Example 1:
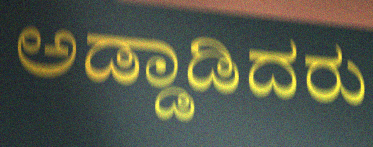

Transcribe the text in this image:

ಅಡ್ಡಾಡಿದರು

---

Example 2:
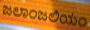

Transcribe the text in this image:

ಜಲಾಂಜಲಿಯಂ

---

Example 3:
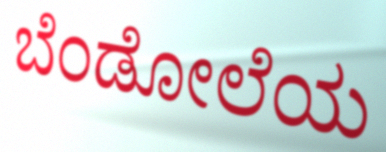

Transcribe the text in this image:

ಬೆಂಡೋಲೆಯ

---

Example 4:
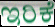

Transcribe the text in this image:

ಇರಿಕೆ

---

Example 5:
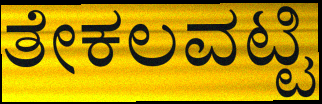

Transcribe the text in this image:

ತೇಕಲವಟ್ಟಿ